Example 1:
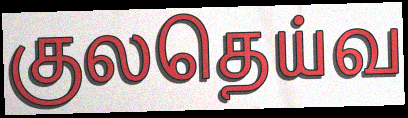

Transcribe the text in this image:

குலதெய்வ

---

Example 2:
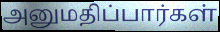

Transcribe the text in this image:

அனுமதிப்பார்கள்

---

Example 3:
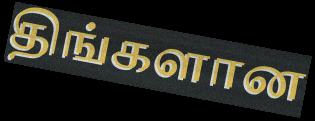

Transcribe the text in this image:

திங்களான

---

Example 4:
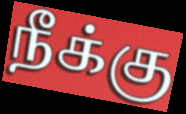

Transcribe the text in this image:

நீக்கு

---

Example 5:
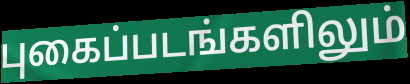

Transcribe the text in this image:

புகைப்படங்களிலும்